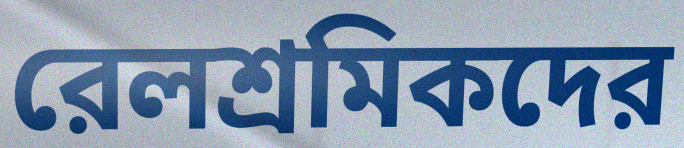
রেলশ্রমিকদের